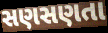
સણસણતા